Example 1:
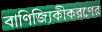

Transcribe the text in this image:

বাণিজ্যিকীকরণের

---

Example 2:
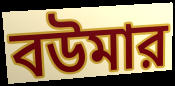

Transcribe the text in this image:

বউমার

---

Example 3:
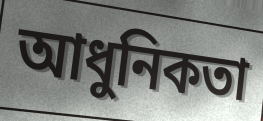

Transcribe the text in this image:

আধুনিকতা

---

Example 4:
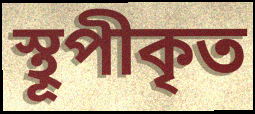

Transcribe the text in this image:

স্থূপীকৃত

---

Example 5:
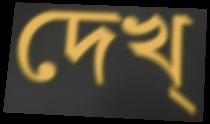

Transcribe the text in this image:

দেখ্